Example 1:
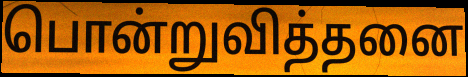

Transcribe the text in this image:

பொன்றுவித்தனை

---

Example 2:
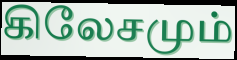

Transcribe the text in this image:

கிலேசமும்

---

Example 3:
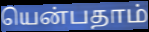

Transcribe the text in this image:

யென்பதாம்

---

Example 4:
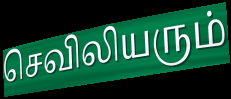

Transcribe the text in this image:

செவிலியரும்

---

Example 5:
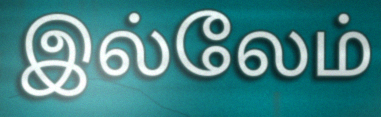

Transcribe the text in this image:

இல்லேம்